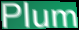
Plum